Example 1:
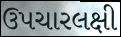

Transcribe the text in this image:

ઉપચારલક્ષી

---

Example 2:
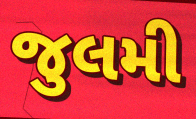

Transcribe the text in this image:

જુલમી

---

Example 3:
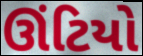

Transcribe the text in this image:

ઊંટિયો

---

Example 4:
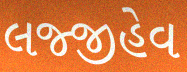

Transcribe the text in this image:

લજ્જીહેવ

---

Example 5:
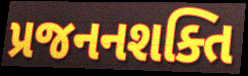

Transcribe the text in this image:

પ્રજનનશક્તિ